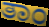
ತಾಂ